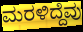
ಮರಳಿದ್ದೆವು